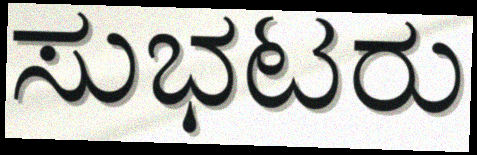
ಸುಭಟರು